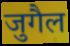
जुगैल